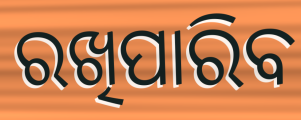
ରଖିପାରିବ